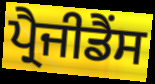
ਪ੍ਰੈਜੀਡੈਂਸ